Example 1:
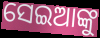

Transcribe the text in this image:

ସେଇଆଙ୍କୁ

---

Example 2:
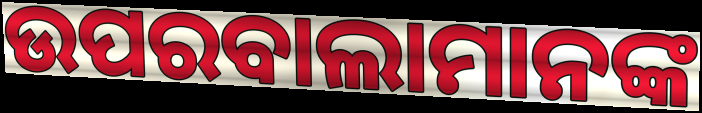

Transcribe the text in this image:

ଉପରବାଲାମାନଙ୍କ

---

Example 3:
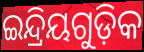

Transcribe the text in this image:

ଇନ୍ଦ୍ରିୟଗୁଡ଼ିକ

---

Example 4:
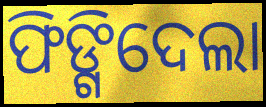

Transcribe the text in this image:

ଫିଙ୍ଗିଦେଲା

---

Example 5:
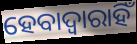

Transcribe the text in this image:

ହେବାଦ୍ଵାରାହିଁ